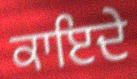
ਕਾਇਦੇ